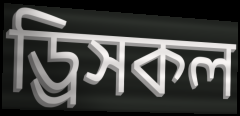
ড্রিসকল